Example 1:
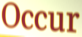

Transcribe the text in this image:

Occur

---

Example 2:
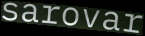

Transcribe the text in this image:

sarovar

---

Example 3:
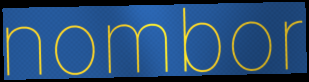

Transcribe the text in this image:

nombor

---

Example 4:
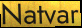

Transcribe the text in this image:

Natvar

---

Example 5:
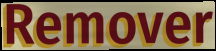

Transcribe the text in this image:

Remover